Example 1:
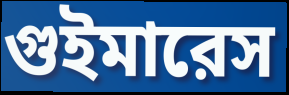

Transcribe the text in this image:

গুইমারেস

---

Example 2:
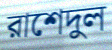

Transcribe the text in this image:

রাশেদুল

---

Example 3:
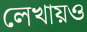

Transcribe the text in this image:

লেখায়ও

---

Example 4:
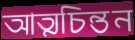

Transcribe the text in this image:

আত্মচিন্তন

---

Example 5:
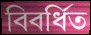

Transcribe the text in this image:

বিবর্ধিত